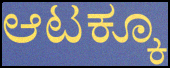
ಆಟಕ್ಕೂ